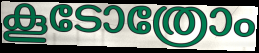
കൂടോത്രോം